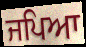
ਜਪਿਆ